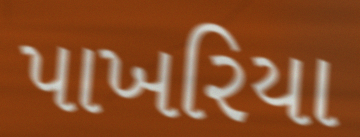
પાખરિયા